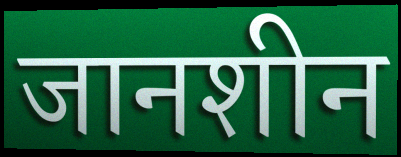
जानशीन